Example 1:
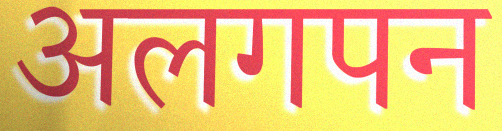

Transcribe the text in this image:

अलगपन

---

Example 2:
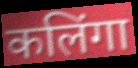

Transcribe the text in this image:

कलिंगा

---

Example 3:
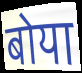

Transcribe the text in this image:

बोया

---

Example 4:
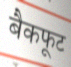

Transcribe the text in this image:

बैकफूट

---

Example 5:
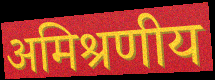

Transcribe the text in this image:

अमिश्रणीय